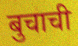
बुचाची